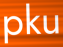
pku